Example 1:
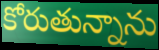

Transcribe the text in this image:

కోరుతున్నాను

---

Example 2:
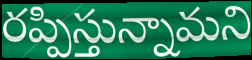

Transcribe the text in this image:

రప్పిస్తున్నామని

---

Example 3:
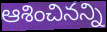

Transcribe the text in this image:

ఆశించినన్ని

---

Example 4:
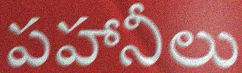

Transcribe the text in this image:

పహానీలు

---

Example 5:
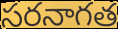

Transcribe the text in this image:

సరనాగత